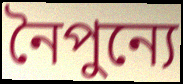
নৈপুন্যে